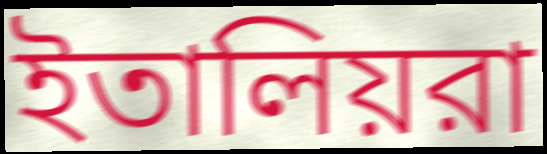
ইতালিয়রা